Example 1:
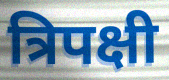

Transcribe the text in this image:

त्रिपक्षी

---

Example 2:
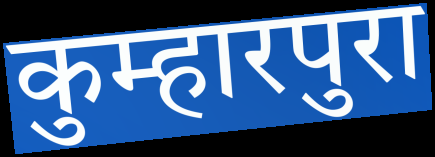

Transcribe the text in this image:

कुम्हारपुरा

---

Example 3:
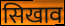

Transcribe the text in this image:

सिखाव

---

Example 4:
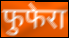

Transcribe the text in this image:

फुफेरा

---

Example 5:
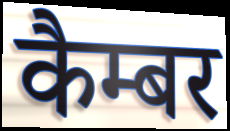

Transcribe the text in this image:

कैम्बर